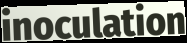
inoculation